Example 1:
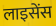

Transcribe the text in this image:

लाइसेंस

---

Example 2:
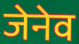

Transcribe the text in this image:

जेनेव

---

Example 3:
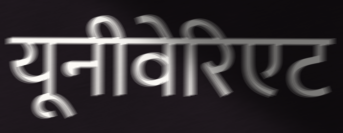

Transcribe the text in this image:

यूनीवेरिएट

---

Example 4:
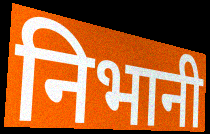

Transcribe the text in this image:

निभानी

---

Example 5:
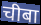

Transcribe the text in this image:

चीबा